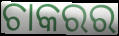
ଚାକରର